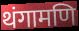
थंगामणि